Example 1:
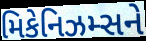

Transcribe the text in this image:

મિકેનિઝમ્સને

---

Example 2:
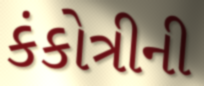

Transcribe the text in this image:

કંકોત્રીની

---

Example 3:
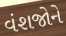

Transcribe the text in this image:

વંશજોને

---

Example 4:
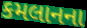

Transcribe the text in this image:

કમલાનના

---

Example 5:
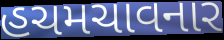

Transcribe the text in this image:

હચમચાવનાર